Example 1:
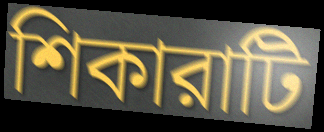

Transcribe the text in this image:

শিকারাটি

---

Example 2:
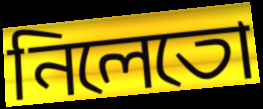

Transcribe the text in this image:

নিলেতো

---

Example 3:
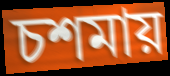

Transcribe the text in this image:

চশমায়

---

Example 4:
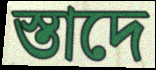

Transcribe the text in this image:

স্তাদে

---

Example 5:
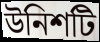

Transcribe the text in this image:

উনিশটি